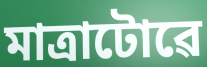
মাত্ৰাটোৱে